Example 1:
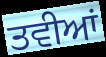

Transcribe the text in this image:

ਤਵੀਆਂ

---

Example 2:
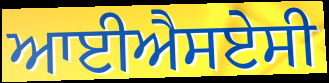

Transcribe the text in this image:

ਆਈਐਸਏਸੀ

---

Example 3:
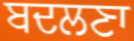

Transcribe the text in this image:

ਬਦਲਣਾ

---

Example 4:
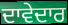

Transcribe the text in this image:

ਦਾਵੇਦਾਰ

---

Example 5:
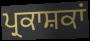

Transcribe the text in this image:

ਪ੍ਰਕਾਸ਼ਕਾਂ